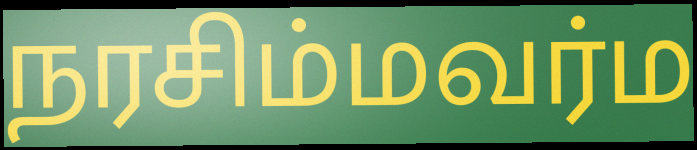
நரசிம்மவர்ம